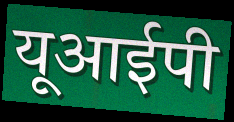
यूआईपी